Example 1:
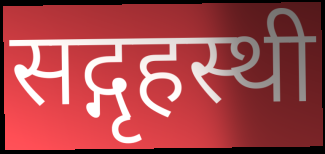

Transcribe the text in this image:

सद्गृहस्थी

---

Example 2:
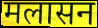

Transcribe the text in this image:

मलासन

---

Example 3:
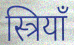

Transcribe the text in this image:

स्त्रियाँ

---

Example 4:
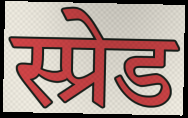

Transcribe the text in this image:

स्‍प्रेड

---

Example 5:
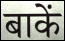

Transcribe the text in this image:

बाकें